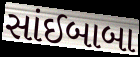
સાંઈબાબા